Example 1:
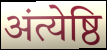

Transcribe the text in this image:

अंत्येष्ठि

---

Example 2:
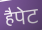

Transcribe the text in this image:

हैपेट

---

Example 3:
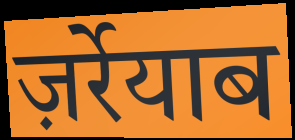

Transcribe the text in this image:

ज़र्रेयाब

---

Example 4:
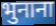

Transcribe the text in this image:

भुनाना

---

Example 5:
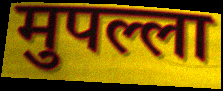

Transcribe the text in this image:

मुपल्ला